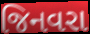
જિનવરા